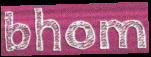
bhom